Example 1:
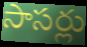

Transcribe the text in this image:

సాసర్లు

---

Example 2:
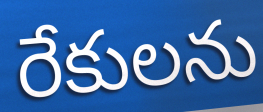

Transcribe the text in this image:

రేకులను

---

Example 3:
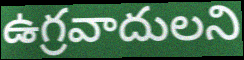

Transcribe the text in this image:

ఉగ్రవాదులని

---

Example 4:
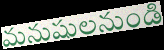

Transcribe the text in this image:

మనుషులనుండి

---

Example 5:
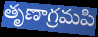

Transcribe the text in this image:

తృణాగ్రమపి